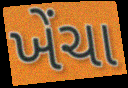
ખેંચા